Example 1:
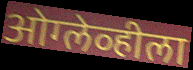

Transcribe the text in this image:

ओग्लेव्हीला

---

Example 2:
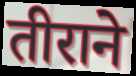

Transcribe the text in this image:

तीराने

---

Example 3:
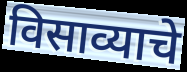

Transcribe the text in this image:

विसाव्याचे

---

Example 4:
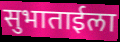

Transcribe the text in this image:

सुभाताईला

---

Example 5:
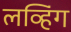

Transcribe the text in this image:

लव्हिंग